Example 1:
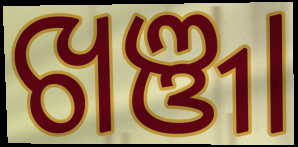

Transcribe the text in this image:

ଖଞ୍ଜା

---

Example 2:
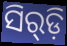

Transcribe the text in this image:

ସିର୍‌ଡ଼ି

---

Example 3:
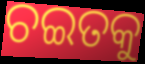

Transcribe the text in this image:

ଚଇତକୁ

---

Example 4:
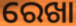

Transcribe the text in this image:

ରେଖା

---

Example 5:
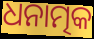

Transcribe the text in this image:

ଧନାତ୍ମକ